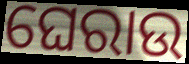
ଘେରାଉ